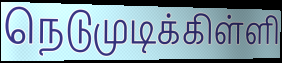
நெடுமுடிக்கிள்ளி